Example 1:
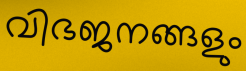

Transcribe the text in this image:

വിഭജനങ്ങളും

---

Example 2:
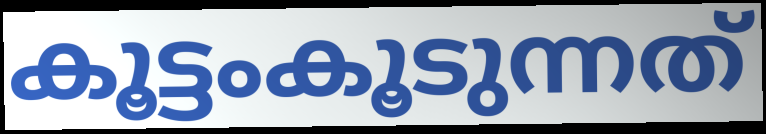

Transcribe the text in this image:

കൂട്ടംകൂടുന്നത്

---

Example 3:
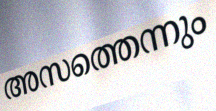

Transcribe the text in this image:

അസത്തെന്നും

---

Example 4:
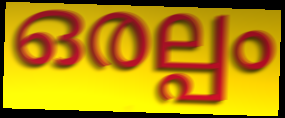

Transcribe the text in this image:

ഒരല്പം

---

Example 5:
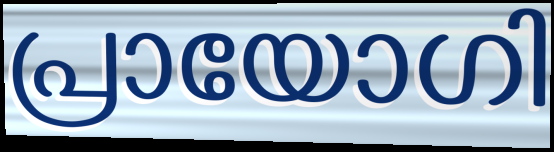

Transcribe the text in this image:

പ്രായോഗി